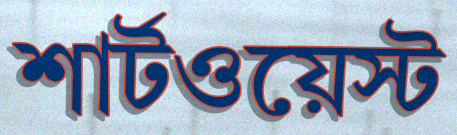
শার্টওয়েস্ট